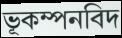
ভূকম্পনবিদ